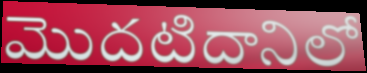
మొదటిదానిలో